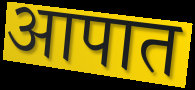
आपात